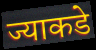
ज्याकडे